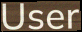
User